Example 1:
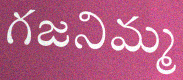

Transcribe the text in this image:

గజనిమ్మ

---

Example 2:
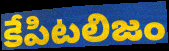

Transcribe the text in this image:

కేపిటలిజం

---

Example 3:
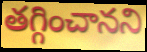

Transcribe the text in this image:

తగ్గించానని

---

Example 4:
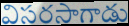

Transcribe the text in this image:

విసరసాగాడు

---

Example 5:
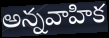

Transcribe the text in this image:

అన్నవాహిక